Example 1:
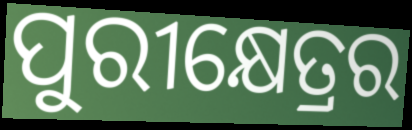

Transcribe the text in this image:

ପୁରୀକ୍ଷେତ୍ରର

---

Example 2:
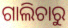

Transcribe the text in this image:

ଗାଲିଚାରୁ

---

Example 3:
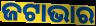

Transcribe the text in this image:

ଜଟାଭାର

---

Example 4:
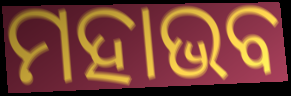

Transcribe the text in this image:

ମହାଭବ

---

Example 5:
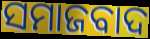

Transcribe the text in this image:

ସମାଜବାଦ